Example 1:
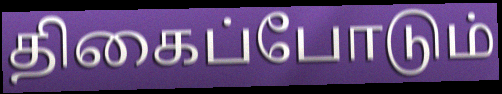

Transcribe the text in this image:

திகைப்போடும்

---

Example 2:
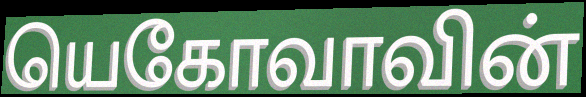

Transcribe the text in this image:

யெகோவாவின்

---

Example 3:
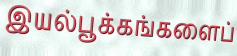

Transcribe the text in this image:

இயல்பூக்கங்களைப்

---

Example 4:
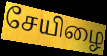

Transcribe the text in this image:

சேயிழை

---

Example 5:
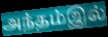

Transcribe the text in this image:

அந்தம்இல்